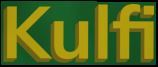
Kulfi